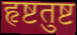
हृष्टतुष्ट